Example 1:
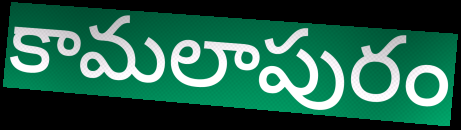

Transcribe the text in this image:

కామలాపురం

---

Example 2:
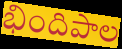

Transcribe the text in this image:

భిందిపాల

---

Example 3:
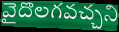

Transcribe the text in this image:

వైదొలగవచ్చని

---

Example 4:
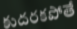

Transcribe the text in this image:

కుదరకపోతే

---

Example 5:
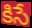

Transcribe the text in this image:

కిసే